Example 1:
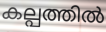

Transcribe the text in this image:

കല്പത്തിൽ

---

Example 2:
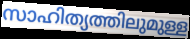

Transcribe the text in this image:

സാഹിത്യത്തിലുമുള്ള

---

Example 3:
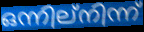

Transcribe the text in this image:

ഒന്നില്നിന്ന്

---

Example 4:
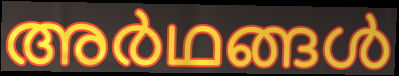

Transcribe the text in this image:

അർഥങ്ങൾ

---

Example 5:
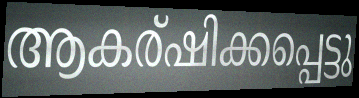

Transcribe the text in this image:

ആകര്ഷിക്കപ്പെട്ടു